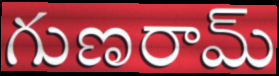
గుణరామ్